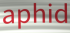
aphid